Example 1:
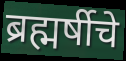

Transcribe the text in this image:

ब्रह्मर्षीचे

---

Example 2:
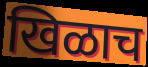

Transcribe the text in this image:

खिळाच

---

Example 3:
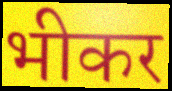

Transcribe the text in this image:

भीकर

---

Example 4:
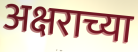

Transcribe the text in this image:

अक्षराच्या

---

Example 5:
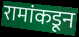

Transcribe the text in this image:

रामांकडून